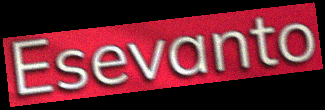
Esevanto